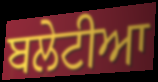
ਬਲੇਟੀਆ